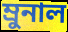
ম্রুনাল